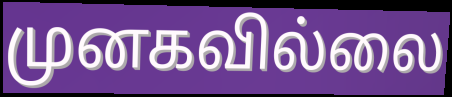
முனகவில்லை